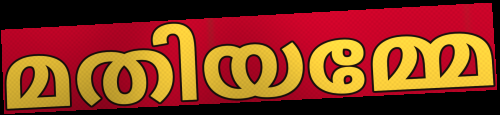
മതിയമ്മേ